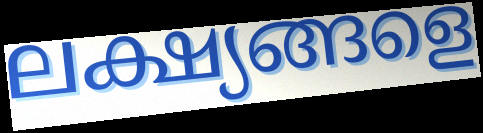
ലക്ഷ്യങ്ങളെ